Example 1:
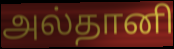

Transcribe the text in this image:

அல்தானி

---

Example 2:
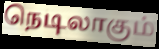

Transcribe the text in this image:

நெடிலாகும்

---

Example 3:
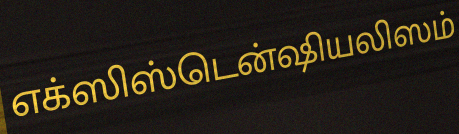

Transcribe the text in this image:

எக்ஸிஸ்டென்ஷியலிஸம்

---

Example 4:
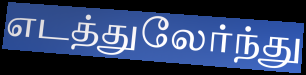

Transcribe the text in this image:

எடத்துலேர்ந்து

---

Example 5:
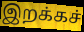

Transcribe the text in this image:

இறக்கச்